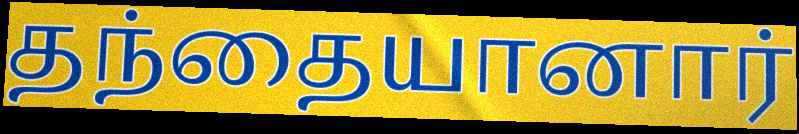
தந்தையானார்